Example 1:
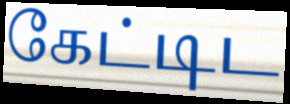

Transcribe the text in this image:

கேட்டிட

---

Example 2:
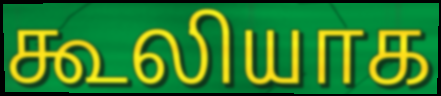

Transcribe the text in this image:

கூலியாக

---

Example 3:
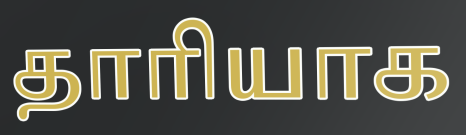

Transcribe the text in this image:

தாரியாக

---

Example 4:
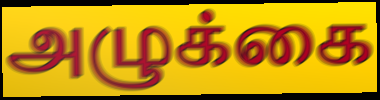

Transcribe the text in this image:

அழுக்கை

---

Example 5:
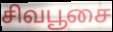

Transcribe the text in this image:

சிவபூசை